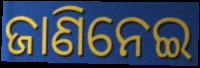
ଜାଣିନେଇ